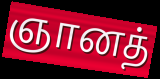
ஞானத்